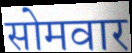
सोमवार